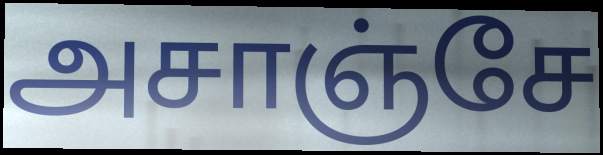
அசாஞ்சே